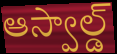
ఆస్వాల్డ్